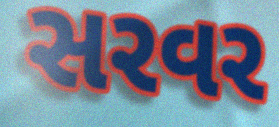
સરવર